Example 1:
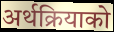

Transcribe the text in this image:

अर्थक्रियाको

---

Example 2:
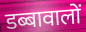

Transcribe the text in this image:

डब्बावालों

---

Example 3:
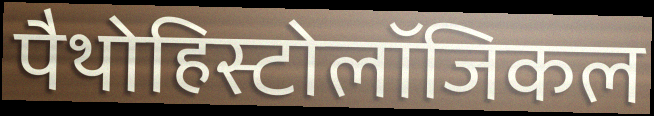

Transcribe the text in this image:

पैथोहिस्टोलॉजिकल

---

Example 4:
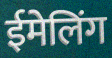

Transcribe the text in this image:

ईमेलिंग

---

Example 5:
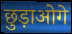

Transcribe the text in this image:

छुड़ाओगे